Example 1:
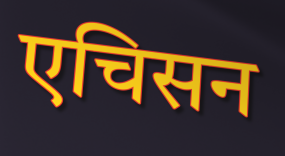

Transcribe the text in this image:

एचिसन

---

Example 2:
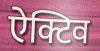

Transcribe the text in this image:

ऐक्टिव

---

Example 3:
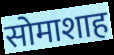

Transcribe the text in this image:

सोमाशाह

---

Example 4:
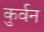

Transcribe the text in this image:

कुर्वन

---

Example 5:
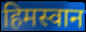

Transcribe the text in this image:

हिमस्वान